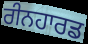
ਰੀਨਹਾਰਡ